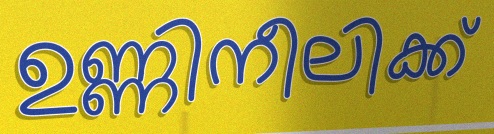
ഉണ്ണിനീലിക്ക്